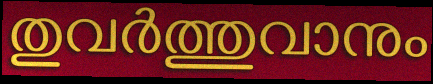
തുവർത്തുവാനും